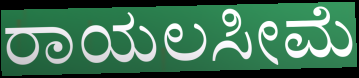
ರಾಯಲಸೀಮೆ